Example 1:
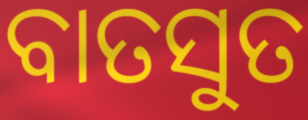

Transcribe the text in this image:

ବାତସୁତ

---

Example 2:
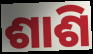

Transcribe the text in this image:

ଶାଶି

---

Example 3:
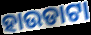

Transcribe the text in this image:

ହାଉଡାଟା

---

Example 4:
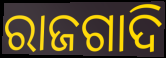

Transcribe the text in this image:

ରାଜଗାଦି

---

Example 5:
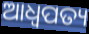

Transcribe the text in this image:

ଆଧ୍ଵପତ୍ୟ